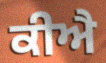
ਕੀਐ